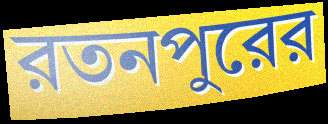
রতনপুরের